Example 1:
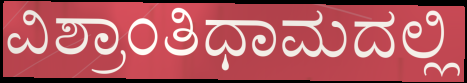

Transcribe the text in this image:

ವಿಶ್ರಾಂತಿಧಾಮದಲ್ಲಿ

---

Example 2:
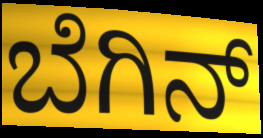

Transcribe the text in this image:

ಬೆಗಿನ್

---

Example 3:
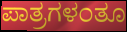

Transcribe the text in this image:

ಪಾತ್ರಗಳಂತೂ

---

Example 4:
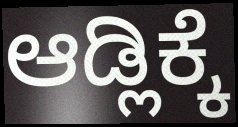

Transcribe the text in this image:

ಆಡ್ಲಿಕ್ಕೆ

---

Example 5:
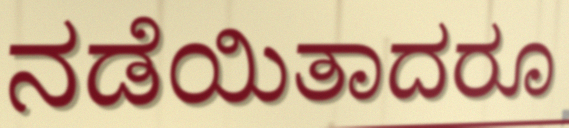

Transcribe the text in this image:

ನಡೆಯಿತಾದರೂ